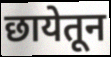
छायेतून